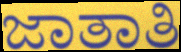
ಜಾತಾತಿ